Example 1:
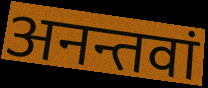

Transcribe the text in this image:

अनन्तवां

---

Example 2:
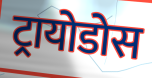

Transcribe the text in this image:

ट्रायोडोस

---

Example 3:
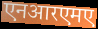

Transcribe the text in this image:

एनआरएमए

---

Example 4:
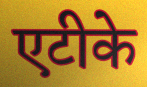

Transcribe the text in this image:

एटीके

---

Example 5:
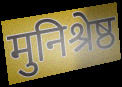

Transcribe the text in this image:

मुनिश्रेष्ठ